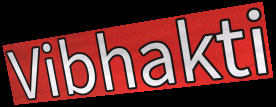
Vibhakti